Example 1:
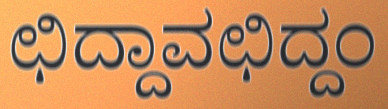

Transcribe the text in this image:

ಛಿದ್ದಾವಛಿದ್ದಂ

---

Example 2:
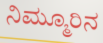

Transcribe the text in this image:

ನಿಮ್ಮೂರಿನ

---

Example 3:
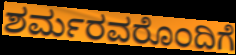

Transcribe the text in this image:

ಶರ್ಮರವರೊಂದಿಗೆ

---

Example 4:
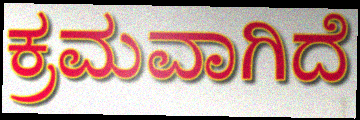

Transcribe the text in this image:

ಕ್ರಮವಾಗಿದೆ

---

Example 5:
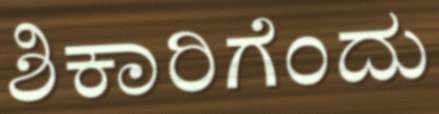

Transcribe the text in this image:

ಶಿಕಾರಿಗೆಂದು